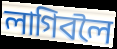
লাগিবলৈ